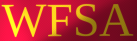
WFSA